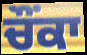
ਚੌੰਕਾ